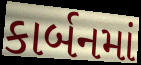
કાર્બનમાં